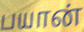
பயான்